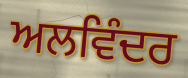
ਅਲਵਿੰਦਰ